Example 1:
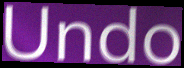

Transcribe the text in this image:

Undo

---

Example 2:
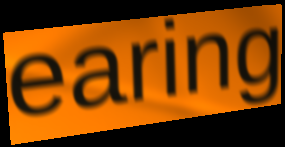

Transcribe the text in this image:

earing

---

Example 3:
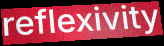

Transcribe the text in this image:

reflexivity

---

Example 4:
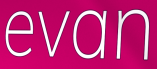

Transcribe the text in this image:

evan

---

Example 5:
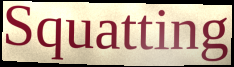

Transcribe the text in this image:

Squatting